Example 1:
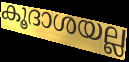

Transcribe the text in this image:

കൂദാശയല്ല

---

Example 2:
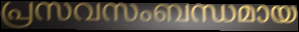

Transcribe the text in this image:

പ്രസവസംബന്ധമായ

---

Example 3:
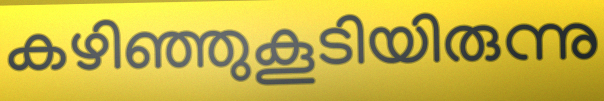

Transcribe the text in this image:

കഴിഞ്ഞുകൂടിയിരുന്നു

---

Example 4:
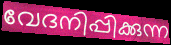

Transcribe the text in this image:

വേദനിപ്പിക്കുന്ന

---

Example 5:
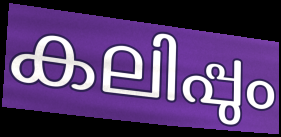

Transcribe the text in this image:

കലിപ്പും